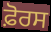
ਫ਼ੋਰਸ